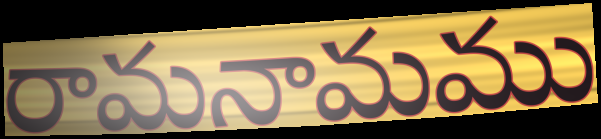
రామనామము